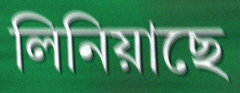
লিনিয়াছে